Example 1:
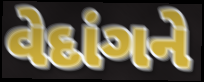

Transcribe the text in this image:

વેદાંગને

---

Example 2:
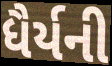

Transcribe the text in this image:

ધૈર્યની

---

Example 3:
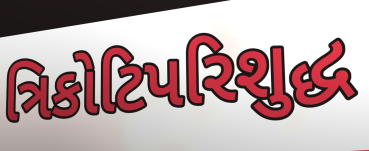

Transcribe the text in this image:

ત્રિકોટિપરિશુદ્ધ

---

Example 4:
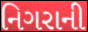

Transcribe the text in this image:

નિગરાની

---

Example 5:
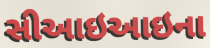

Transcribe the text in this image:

સીઆઇઆઇના